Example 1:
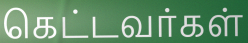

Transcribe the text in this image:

கெட்டவர்கள்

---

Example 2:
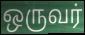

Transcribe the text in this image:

ஒருவர்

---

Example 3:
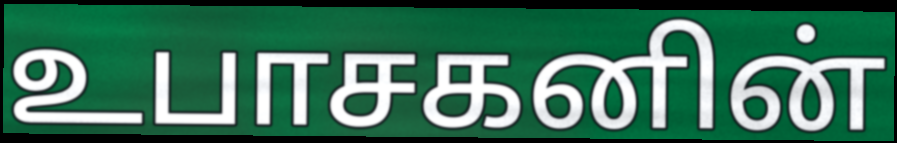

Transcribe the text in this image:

உபாசகனின்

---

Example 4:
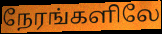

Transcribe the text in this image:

நேரங்களிலே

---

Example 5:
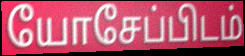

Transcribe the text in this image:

யோசேப்பிடம்